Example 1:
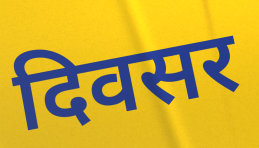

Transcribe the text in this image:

दिवसर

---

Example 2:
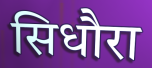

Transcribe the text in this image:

सिधौरा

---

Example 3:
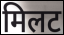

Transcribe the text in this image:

मिलट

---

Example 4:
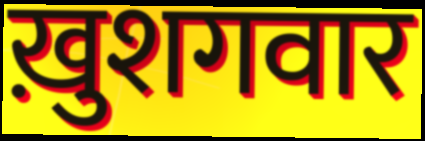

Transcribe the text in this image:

ख़ुशगवार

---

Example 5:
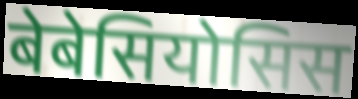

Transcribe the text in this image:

बेबेसियोसिस